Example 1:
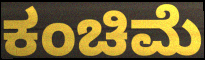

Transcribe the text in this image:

ಕಂಚಿಮೆ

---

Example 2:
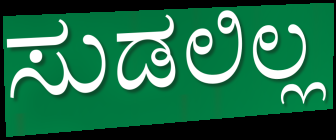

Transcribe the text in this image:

ಸುಡಲಿಲ್ಲ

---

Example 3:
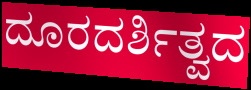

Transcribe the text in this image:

ದೂರದರ್ಶಿತ್ವದ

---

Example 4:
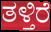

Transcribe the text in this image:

ತಳ್ತಿರೆ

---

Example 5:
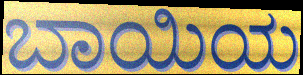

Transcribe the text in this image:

ಬಾಯಿಯ